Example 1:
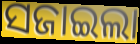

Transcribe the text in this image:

ସଜାଇଲା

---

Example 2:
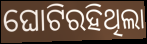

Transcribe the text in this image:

ଘୋଟିରହିଥିଲା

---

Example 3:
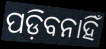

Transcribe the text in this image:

ପଡ଼ିବନାହିଁ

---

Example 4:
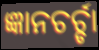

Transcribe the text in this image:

ଜ୍ଞାନଚର୍ଚ୍ଚା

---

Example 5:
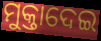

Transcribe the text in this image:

ମୁକ୍ତାଦେଇ